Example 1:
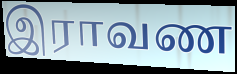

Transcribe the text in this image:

இராவண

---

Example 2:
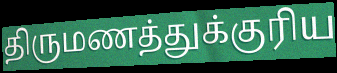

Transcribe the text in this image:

திருமணத்துக்குரிய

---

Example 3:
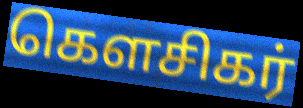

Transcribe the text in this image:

கௌசிகர்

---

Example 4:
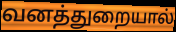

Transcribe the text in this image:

வனத்துறையால்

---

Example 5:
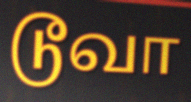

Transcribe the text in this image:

டூவா